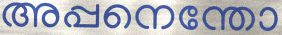
അപ്പനെന്തോ